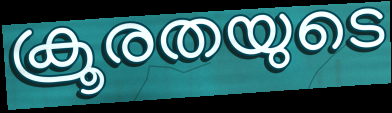
ക്രൂരതയുടെ